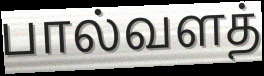
பால்வளத்